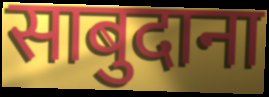
साबुदाना